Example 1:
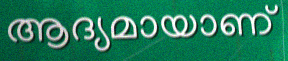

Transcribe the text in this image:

ആദ്യമായാണ്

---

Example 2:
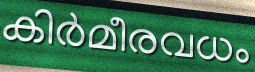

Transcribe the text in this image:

കിർമീരവധം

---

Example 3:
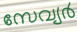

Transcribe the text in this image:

സേവ്യർ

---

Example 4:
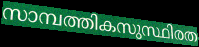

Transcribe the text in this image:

സാമ്പത്തികസുസ്ഥിരത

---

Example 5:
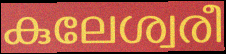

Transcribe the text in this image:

കുലേശ്വരീ